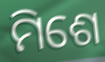
ମିଶେ